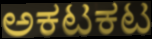
ಅಕಟಕಟ